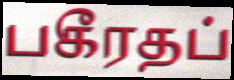
பகீரதப்